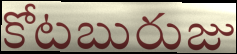
కోటబురుజు